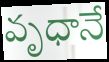
వృధానే